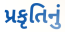
પ્રકૃતિનું